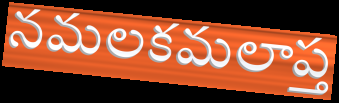
నమలకమలాప్త